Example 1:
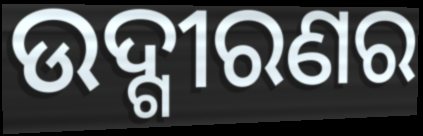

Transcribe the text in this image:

ଉଦ୍ଗୀରଣର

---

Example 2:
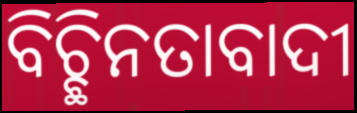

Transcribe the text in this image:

ବିଚ୍ଛିନତାବାଦୀ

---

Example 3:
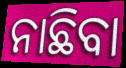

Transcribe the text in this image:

ନାଛିବା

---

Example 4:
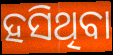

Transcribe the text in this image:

ହସିଥିବା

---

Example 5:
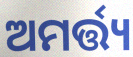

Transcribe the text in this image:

ଅମର୍ତ୍ତ୍ୟ